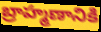
బ్రాహ్మణానికి